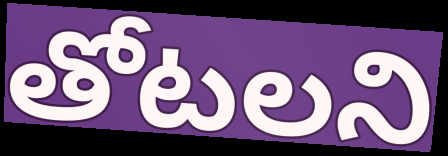
తోటలని